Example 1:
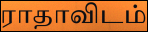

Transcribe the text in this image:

ராதாவிடம்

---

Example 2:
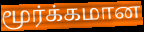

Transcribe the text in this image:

மூர்க்கமான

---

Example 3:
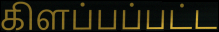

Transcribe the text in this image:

கிளப்பப்பட்ட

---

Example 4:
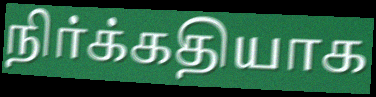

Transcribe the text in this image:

நிர்க்கதியாக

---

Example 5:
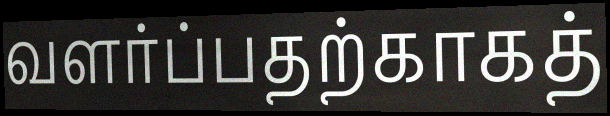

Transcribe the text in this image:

வளர்ப்பதற்காகத்